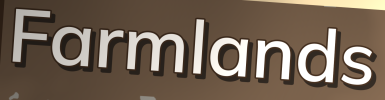
Farmlands